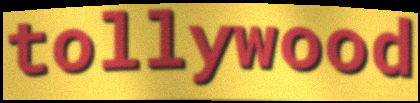
tollywood